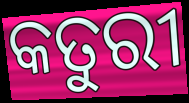
କତୁରୀ